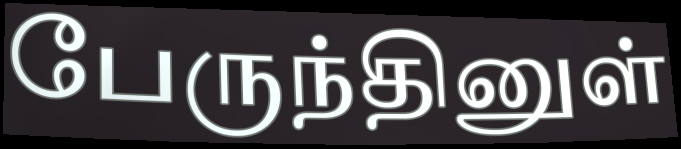
பேருந்தினுள்